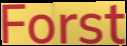
Forst